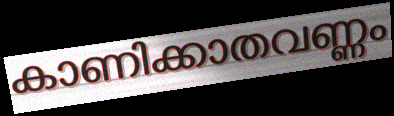
കാണിക്കാതവണ്ണം